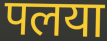
पलया